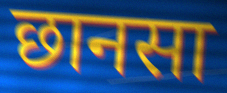
छानसा